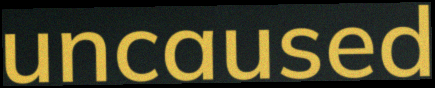
uncaused